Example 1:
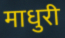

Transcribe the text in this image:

माधुरी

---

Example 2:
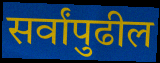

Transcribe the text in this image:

सर्वांपुढील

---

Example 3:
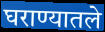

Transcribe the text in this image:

घराण्यातले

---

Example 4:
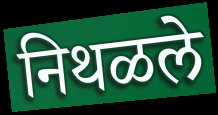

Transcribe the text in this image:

निथळले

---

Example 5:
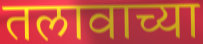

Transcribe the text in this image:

तलावाच्या